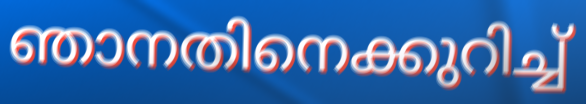
ഞാനതിനെക്കുറിച്ച്